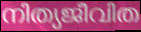
നിത്യജീവിത